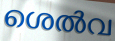
ശെൽവ